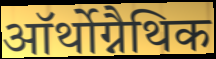
ऑर्थोग्नैथिक